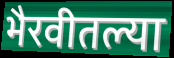
भैरवीतल्या